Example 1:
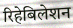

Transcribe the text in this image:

रिहेबिलेशन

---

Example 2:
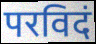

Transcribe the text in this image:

परविदं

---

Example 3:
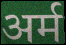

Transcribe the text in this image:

अर्म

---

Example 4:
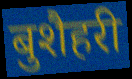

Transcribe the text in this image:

बुशैहरी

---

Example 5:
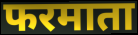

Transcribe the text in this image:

फरमाता